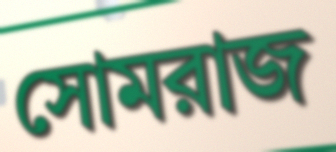
সোমরাজ